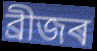
ব্ৰীজৰ